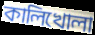
কালিখোলা